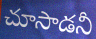
చూసాడనీ